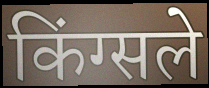
किंग्सले